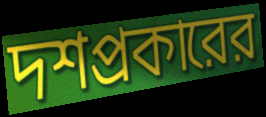
দশপ্রকারের